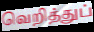
வெறித்துப்